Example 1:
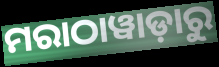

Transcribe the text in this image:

ମରାଠାୱାଡ଼ାରୁ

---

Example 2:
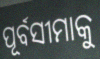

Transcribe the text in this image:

ପୂର୍ବସୀମାକୁ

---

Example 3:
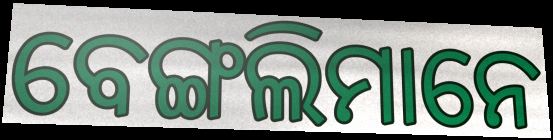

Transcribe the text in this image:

ବେଙ୍ଗଲିମାନେ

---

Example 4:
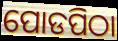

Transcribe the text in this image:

ପୋଡପିଠା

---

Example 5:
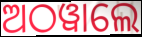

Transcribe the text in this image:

ଅଠୱାଲେ